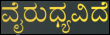
ವೈರುಧ್ಯವಿದೆ